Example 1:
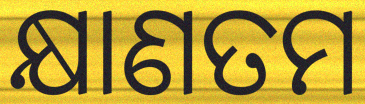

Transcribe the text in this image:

କ୍ଷାଣତମ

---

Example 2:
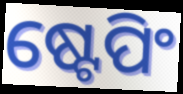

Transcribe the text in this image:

ଷ୍ଟେପିଂ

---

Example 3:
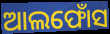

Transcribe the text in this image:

ଆଲଫୋଁସ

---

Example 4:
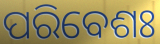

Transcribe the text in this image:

ପରିବେଶଃ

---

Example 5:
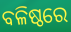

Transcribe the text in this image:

ବଳିଷ୍ଠରେ